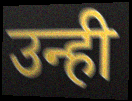
उन्ही